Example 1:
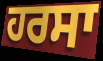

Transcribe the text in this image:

ਹਰਸਾ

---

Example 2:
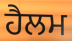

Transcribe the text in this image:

ਹੈਲਮ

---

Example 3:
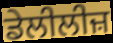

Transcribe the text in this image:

ਡੇਲੀਲੀਜ਼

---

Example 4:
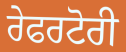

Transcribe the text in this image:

ਰੇਫਰਟੋਰੀ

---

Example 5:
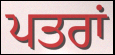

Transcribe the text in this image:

ਪਤਰਾਂ